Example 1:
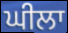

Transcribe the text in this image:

ਘੀਲਾ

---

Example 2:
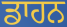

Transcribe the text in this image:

ਡਾਹਨ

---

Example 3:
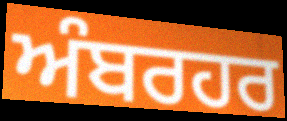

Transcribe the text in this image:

ਅੰਬਰਹਰ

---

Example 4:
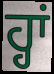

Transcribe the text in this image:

ਹ੍ਹਾਂ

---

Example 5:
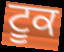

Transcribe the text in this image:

ਟੂਕ